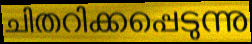
ചിതറിക്കപ്പെടുന്നു